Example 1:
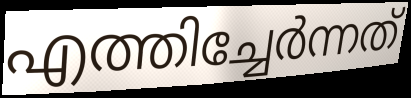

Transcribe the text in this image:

എത്തിച്ചേർന്നത്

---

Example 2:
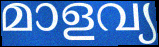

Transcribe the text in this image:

മാളവ്യ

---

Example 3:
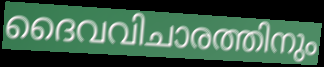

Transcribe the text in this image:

ദൈവവിചാരത്തിനും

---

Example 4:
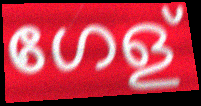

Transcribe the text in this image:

ഗേള്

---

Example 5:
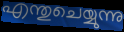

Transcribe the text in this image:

എന്തുചെയ്യുന്നു